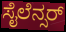
ಸೈಲೆನ್ಸರ್